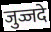
जुज्जदे